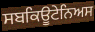
ਸਬਕਿਊਟੇਨਿਅਸ